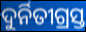
ଦୁର୍ନିତୀଗ୍ରସ୍ତ